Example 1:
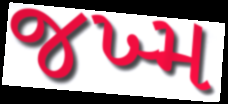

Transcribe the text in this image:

જખ્મ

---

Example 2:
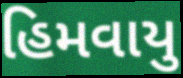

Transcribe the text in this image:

હિમવાયુ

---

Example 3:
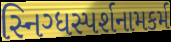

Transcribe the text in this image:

સ્નિગ્ધસ્પર્શનામકર્મ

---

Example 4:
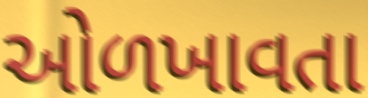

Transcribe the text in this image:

ઓળખાવતા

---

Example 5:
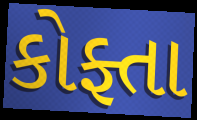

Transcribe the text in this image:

કોફ્તા